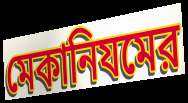
মেকানিযমের